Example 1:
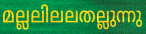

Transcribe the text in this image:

മല്ലലിലലതല്ലുന്നു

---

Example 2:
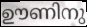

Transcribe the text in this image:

ഊണിനു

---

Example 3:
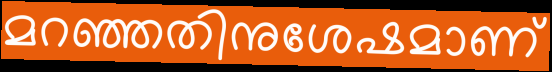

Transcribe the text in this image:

മറഞ്ഞതിനുശേഷമാണ്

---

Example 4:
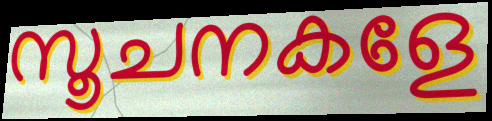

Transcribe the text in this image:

സൂചനകളേ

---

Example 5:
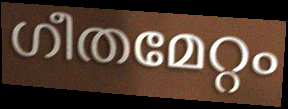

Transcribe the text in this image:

ഗീതമേറ്റം